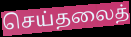
செய்தலைத்